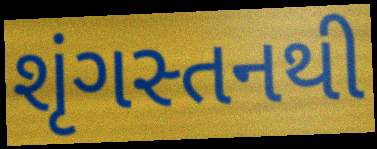
શૃંગસ્તનથી